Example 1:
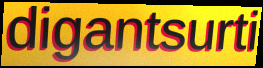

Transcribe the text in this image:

digantsurti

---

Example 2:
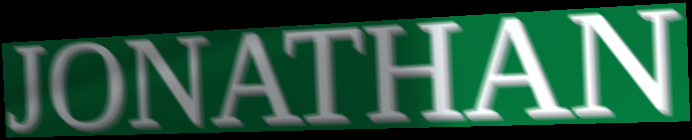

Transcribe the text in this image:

JONATHAN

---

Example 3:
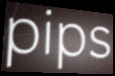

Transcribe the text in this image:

pips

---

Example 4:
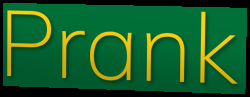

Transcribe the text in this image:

Prank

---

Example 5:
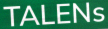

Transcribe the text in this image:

TALENs